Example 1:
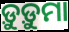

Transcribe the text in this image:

ଡ଼ୁଡ଼ୁମା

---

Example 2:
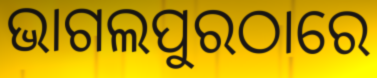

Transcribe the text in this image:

ଭାଗଲପୁରଠାରେ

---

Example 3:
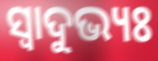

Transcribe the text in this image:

ସ୍ବାଦୁଭ୍ୟଃ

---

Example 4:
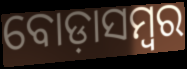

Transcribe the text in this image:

ବୋଡ଼ାସମ୍ବର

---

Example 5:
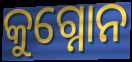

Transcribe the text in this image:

କୁଗ୍ନୋନ